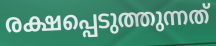
രക്ഷപ്പെടുത്തുന്നത്